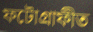
ফটোগ্ৰাফীত